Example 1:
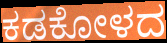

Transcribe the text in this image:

ಕಡಕೋಳದ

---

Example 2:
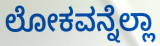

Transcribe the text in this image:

ಲೋಕವನ್ನೆಲ್ಲಾ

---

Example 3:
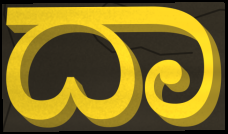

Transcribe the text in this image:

ದಾ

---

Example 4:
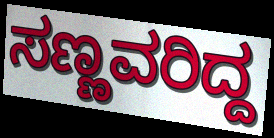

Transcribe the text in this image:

ಸಣ್ಣವರಿದ್ದ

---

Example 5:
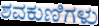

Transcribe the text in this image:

ಶವಕುಣಿಗಳು